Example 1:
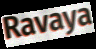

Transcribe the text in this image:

Ravaya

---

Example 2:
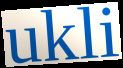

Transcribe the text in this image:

ukli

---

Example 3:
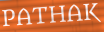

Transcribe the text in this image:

PATHAK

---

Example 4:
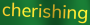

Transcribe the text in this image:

cherishing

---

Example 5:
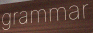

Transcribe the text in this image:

grammar